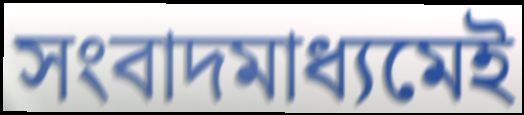
সংবাদমাধ্যমেই